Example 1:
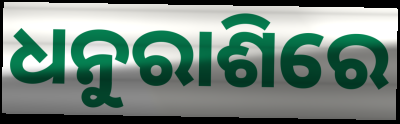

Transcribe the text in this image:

ଧନୁରାଶିରେ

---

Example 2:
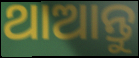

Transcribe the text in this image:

ଥାଆନ୍ତୁ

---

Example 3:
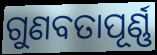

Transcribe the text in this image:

ଗୁଣବତାପୂର୍ଣ୍ଣ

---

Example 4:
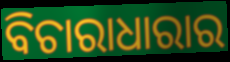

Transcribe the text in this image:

ବିଚାରାଧାରାର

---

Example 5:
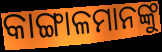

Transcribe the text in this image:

କାଙ୍ଗାଳମାନଙ୍କୁ